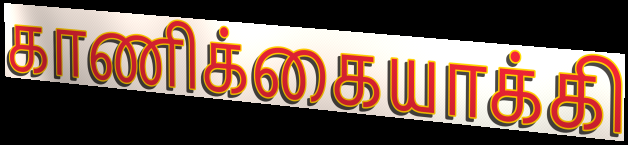
காணிக்கையாக்கி